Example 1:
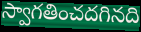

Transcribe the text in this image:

స్వాగతించదగినది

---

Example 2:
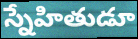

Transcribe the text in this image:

స్నేహితుడూ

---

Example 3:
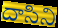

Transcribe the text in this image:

దాసిని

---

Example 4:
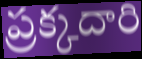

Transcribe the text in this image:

ప్రక్కదారి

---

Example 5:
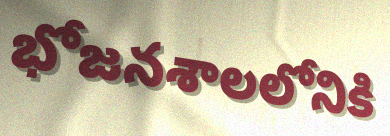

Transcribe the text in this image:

భోజనశాలలోనికి